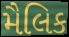
મૈલિક